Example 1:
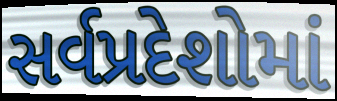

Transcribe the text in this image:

સર્વપ્રદેશોમાં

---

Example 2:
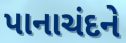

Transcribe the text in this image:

પાનાચંદને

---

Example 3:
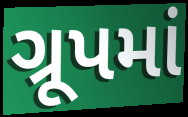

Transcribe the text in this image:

ગ્રૂપમાં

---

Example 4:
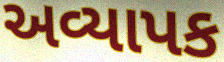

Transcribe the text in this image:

અવ્યાપક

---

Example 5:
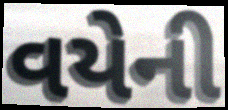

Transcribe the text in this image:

વયેની